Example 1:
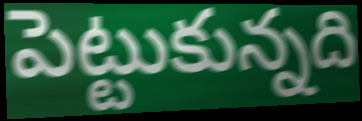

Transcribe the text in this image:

పెట్టుకున్నది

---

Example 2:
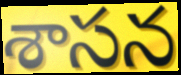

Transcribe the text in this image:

శాసన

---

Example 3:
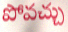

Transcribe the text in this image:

పోవచ్చు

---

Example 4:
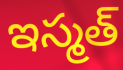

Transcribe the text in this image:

ఇస్మత్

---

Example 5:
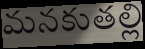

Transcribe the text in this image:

మనకుతల్లి